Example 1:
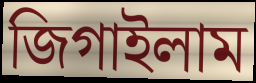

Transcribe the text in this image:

জিগাইলাম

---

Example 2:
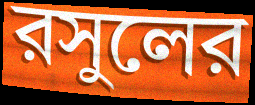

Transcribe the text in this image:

রসুলের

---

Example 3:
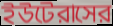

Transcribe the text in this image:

ইউটেরাসের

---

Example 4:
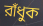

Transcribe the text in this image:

রাঁধুক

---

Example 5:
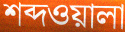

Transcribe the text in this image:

শব্দওয়ালা